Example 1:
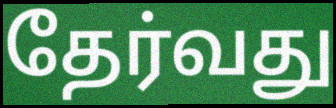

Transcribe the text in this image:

தேர்வது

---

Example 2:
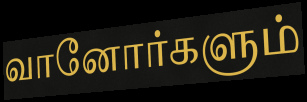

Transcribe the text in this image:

வானோர்களும்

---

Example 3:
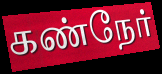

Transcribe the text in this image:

கண்நேர்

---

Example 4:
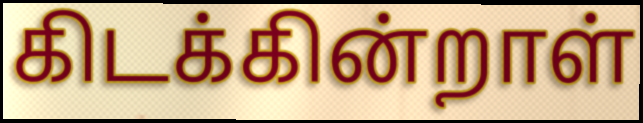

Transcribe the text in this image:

கிடக்கின்றாள்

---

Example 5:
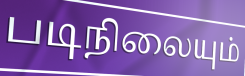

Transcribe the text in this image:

படிநிலையும்